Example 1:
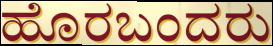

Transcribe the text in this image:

ಹೊರಬಂದರು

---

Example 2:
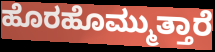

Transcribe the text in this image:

ಹೊರಹೊಮ್ಮುತ್ತಾರೆ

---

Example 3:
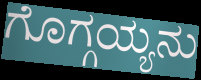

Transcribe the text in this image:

ಗೊಗ್ಗಯ್ಯನು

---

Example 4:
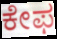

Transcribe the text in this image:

ಕೇಫ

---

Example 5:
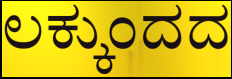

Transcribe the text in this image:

ಲಕ್ಕುಂದದ